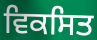
ਵਿਕਸਿਤ